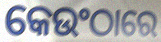
କେଉଂଠାରେ